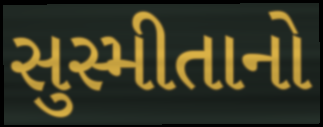
સુસ્મીતાનો